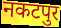
नकटपुर